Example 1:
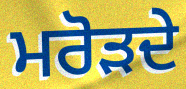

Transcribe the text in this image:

ਮਰੋੜਦੇ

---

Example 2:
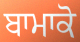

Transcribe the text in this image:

ਬਾਮਾਕੋ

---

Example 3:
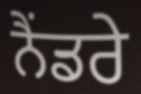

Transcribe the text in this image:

ਨੈਂਡਰੇ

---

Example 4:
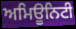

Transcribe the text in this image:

ਅਮਿਊਨਿਟੀ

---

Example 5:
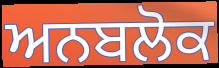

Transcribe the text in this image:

ਅਨਬਲੋਕ